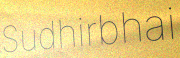
Sudhirbhai